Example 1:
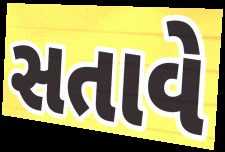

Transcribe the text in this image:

સતાવે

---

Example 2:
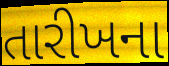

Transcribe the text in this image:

તારીખના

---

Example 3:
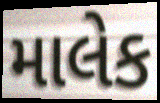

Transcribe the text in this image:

માલેક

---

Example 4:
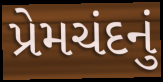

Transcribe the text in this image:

પ્રેમચંદનું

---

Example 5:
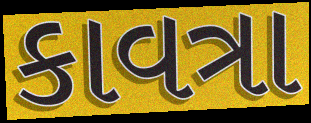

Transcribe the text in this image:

કાવત્રા